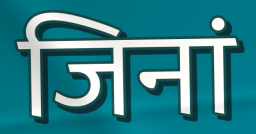
जिनां